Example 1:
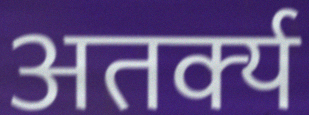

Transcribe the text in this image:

अतर्क्‍य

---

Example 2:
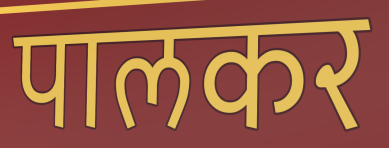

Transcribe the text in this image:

पालकर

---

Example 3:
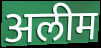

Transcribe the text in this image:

अलीम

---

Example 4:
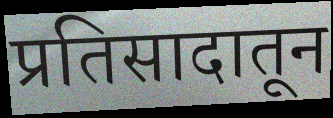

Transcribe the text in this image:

प्रतिसादातून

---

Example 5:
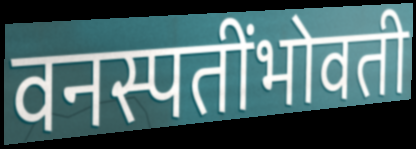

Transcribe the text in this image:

वनस्पतींभोवती